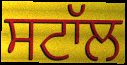
ਸਟਾੱਲ